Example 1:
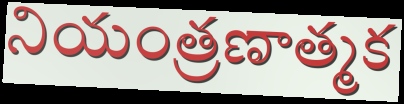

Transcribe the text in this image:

నియంత్రణాత్మక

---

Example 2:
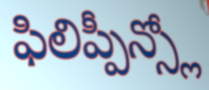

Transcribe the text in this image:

ఫిలిప్పీన్స్లో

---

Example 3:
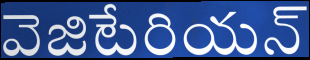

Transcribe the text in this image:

వెజిటేరియన్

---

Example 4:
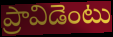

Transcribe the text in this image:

ప్రావిడెంటు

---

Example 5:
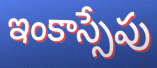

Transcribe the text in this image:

ఇంకాస్సేపు